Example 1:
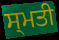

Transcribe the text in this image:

ਸ੍ਮਤੀ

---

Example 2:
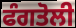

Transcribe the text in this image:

ਫੰਗਤੋਲੀ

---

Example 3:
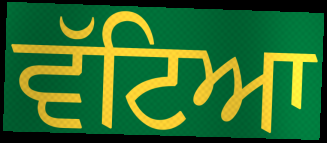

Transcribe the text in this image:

ਵੱਟਿਆ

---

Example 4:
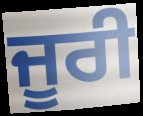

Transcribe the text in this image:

ਜੂਰੀ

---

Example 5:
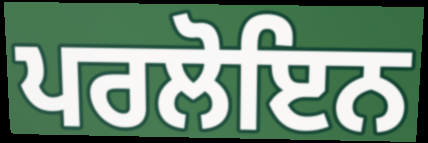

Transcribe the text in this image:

ਪਰਲੋਇਨ